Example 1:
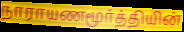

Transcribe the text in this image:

நாராயணமூர்த்தியின்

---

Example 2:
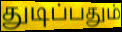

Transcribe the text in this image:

துடிப்பதும்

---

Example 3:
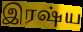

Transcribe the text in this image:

இரஷ்ய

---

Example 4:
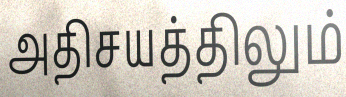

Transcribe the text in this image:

அதிசயத்திலும்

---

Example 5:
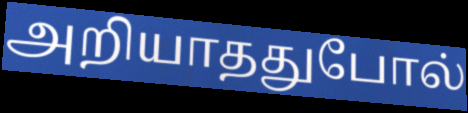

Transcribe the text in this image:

அறியாததுபோல்